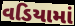
વડિયામાં